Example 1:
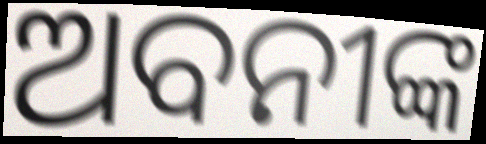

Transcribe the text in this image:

ଅବନୀଙ୍କ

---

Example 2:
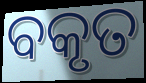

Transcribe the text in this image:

ବକୃତ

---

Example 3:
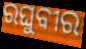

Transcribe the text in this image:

ରଘୁବୀର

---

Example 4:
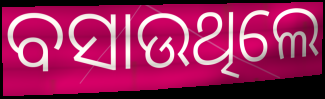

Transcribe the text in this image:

ବସାଉଥିଲେ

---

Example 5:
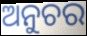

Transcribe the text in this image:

ଅନୁଚର